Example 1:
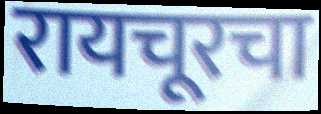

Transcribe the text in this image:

रायचूरचा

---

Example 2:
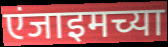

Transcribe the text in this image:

एंजाइमच्या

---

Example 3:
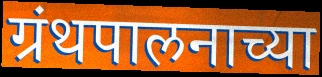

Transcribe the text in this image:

ग्रंथपालनाच्या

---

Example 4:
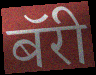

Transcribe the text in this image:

बॅरी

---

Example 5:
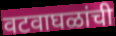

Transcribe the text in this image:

वटवाघळांची